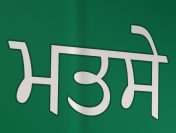
ਮਤਸੇ